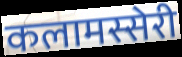
कलामस्सेरी